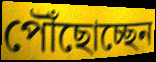
পৌঁছোচ্ছেন